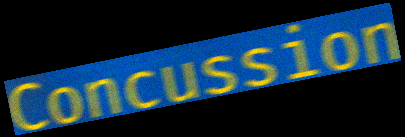
Concussion